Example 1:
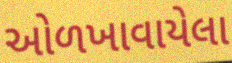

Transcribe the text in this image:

ઓળખાવાયેલા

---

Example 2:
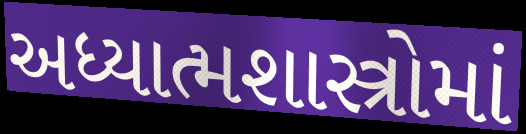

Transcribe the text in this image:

અધ્યાત્મશાસ્ત્રોમાં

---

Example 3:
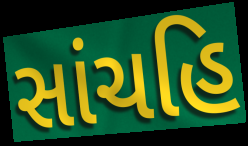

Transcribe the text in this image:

સાંચહિ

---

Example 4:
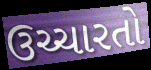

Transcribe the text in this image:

ઉચ્ચારતો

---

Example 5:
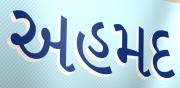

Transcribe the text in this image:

અહમદ